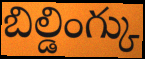
బిల్డింగ్కు